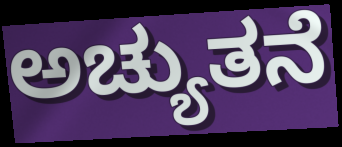
ಅಚ್ಯುತನೆ